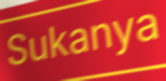
Sukanya